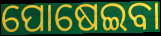
ପୋଷେଇବା